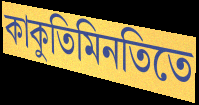
কাকুতিমিনতিতে